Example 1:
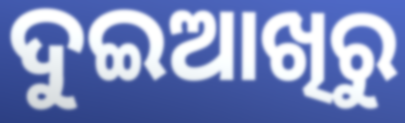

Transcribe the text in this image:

ଦୁଇଆଖିରୁ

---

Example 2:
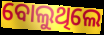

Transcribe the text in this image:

ବୋଲୁଥିଲେ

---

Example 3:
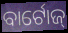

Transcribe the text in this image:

ବାର୍ଟୋଜ୍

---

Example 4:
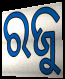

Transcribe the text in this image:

ରଜୁ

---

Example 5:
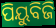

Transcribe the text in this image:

ପିୟୁବିଜି